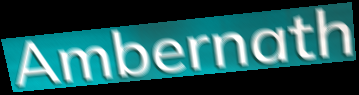
Ambernath